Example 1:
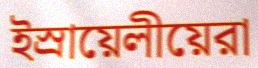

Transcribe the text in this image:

ইস্রায়েলীয়েরা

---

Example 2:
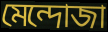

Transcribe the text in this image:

মেন্দোজা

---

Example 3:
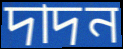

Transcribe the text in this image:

দাদন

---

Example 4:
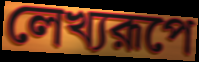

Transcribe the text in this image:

লেখ্যরূপে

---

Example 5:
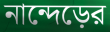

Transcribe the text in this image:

নান্দেড়ের